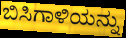
ಬಿಸಿಗಾಳಿಯನ್ನು